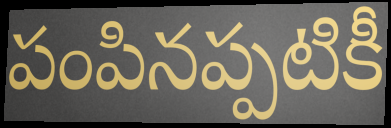
పంపినప్పటికీ